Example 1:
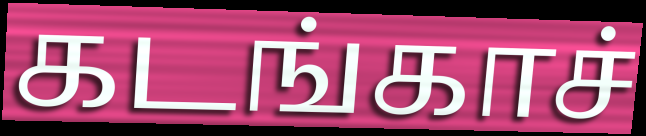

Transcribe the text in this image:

கடங்காச்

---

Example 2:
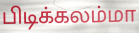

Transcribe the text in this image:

பிடிக்கலம்மா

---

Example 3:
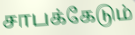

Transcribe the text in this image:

சாபக்கேடும்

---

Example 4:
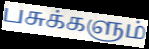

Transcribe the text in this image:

பசுக்களும்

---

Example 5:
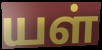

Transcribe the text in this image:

யள்